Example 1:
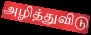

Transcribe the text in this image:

அழித்துவிடு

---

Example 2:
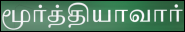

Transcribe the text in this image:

மூர்த்தியாவார்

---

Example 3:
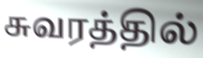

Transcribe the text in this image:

சுவரத்தில்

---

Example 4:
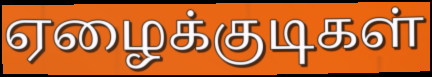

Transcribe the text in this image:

ஏழைக்குடிகள்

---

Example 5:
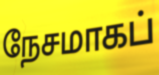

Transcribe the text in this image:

நேசமாகப்